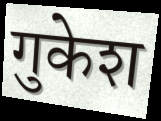
गुकेश